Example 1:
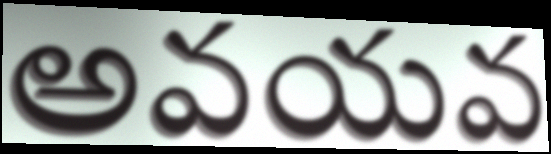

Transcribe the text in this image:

అవయవ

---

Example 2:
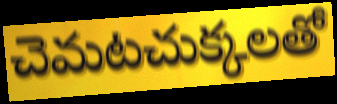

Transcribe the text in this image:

చెమటచుక్కలతో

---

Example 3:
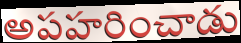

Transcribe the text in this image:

అపహరించాడు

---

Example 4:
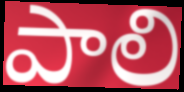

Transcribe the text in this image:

పాలి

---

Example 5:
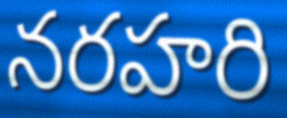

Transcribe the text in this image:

నరహరి